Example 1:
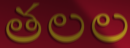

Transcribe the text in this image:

తలల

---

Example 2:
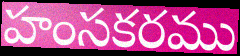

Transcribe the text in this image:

హంసకరము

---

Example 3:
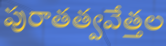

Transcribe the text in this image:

పురాతత్వవేత్తల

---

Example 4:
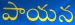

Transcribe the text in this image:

పాయన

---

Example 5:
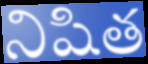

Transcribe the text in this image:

నిషిత